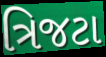
ત્રિજટા